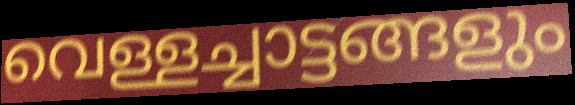
വെള്ളച്ചാട്ടങ്ങളും